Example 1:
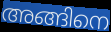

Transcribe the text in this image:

അങ്ങിനെ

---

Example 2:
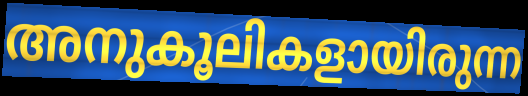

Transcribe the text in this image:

അനുകൂലികളായിരുന്ന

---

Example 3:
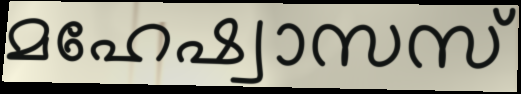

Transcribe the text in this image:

മഹേഷ്വാസസ്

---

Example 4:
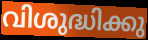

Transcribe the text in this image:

വിശുദ്ധിക്കു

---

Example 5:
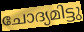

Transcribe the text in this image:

ചോദ്യമിട്ടു